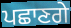
ਪਛਾਣਗੇ